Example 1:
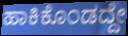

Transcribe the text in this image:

ಹಾಕಿಕೊಂಡದ್ದೇ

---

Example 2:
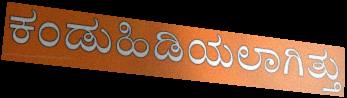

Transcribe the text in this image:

ಕಂಡುಹಿಡಿಯಲಾಗಿತ್ತು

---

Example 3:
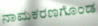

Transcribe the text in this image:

ನಾಮಕರಣಗೊಂಡ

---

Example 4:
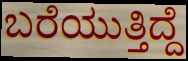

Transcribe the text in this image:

ಬರೆಯುತ್ತಿದ್ದೆ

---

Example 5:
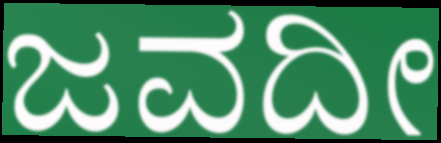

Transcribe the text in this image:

ಜವದೀ